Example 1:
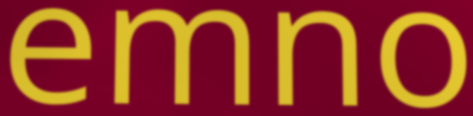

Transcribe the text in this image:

emno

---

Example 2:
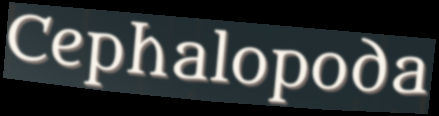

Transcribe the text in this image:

Cephalopoda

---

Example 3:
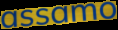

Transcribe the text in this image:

assamo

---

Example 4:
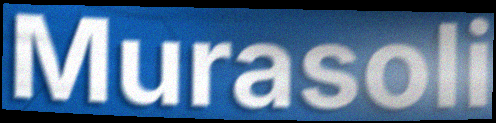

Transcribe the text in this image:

Murasoli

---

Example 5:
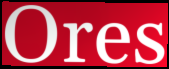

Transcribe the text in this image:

Ores